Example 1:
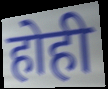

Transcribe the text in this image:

होही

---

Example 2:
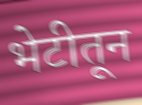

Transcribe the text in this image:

भेटीतून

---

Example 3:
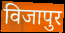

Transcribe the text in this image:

विजापुर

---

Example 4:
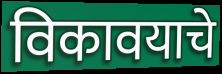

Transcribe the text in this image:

विकावयाचे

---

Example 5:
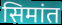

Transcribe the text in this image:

सिमांत